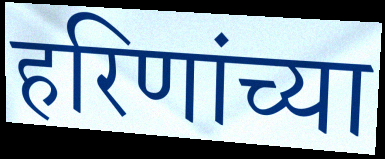
हरिणांच्या